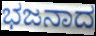
ಭಜನಾದ